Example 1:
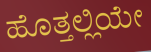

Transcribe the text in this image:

ಹೊತ್ತಲ್ಲಿಯೇ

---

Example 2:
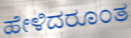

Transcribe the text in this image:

ಹೇಳಿದರೂಂತ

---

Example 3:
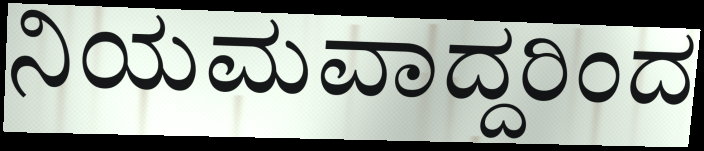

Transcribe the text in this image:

ನಿಯಮವಾದ್ದರಿಂದ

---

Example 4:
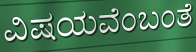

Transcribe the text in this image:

ವಿಷಯವೆಂಬಂತೆ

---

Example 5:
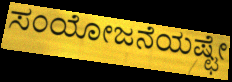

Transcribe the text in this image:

ಸಂಯೋಜನೆಯಷ್ಟೇ